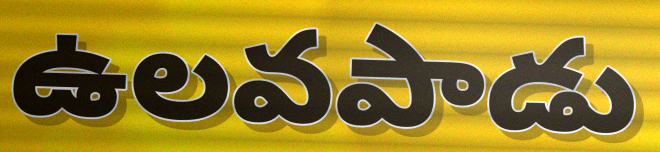
ఉలవపాడు